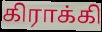
கிராக்கி